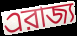
এরাজ্য